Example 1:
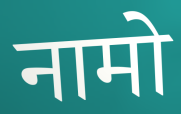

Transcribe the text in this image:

नामो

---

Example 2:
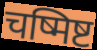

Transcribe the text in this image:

चष्मिष्ट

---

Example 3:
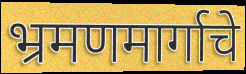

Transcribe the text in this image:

भ्रमणमार्गाचे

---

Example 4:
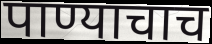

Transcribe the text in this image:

पाण्याचाच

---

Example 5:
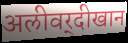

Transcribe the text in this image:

अलीवर्दीखान